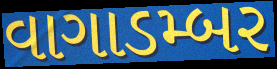
વાગાડમ્બર